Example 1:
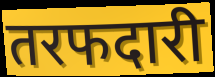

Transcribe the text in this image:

तरफदारी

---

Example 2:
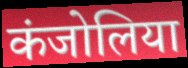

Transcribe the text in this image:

कंजोलिया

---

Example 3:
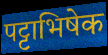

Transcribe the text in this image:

पट्टाभिषेक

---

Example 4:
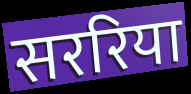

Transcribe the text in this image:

सररिया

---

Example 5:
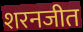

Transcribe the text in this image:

शरनजीत